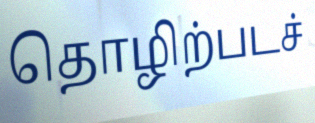
தொழிற்படச்